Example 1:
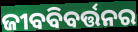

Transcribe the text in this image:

ଜୀବବିବର୍ତ୍ତନର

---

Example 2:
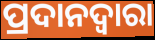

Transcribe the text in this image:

ପ୍ରଦାନଦ୍ୱାରା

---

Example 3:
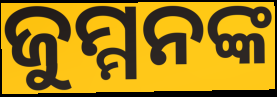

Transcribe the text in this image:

ଜୁମ୍ମନଙ୍କ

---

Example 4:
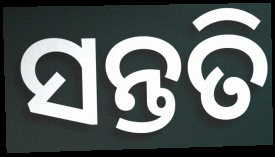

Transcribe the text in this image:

ସନ୍ତତି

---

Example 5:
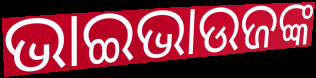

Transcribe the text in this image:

ଭାଇଭାଉଜଙ୍କ